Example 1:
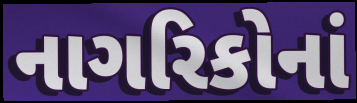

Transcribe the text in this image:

નાગરિકોનાં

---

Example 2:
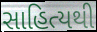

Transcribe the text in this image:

સાહિત્યથી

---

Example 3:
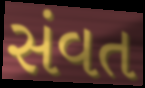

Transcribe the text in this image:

સંવત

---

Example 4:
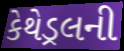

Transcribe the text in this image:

કેથેડ્રલની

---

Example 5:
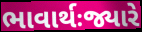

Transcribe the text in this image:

ભાવાર્થઃજ્યારે